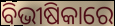
ବିଭୀଷିକାରେ